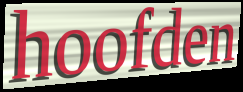
hoofden